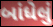
બાંધેલું